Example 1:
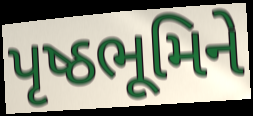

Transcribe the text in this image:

પૃષ્ઠભૂમિને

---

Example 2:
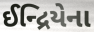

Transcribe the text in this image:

ઈન્દ્રિયેના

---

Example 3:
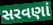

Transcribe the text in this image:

સરવણાં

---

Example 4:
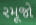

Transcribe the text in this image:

રમૂજો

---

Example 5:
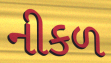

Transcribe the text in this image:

નીકળ